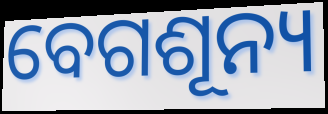
ବେଗଶୂନ୍ୟ